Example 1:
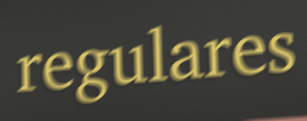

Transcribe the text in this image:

regulares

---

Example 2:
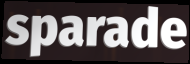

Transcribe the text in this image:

sparade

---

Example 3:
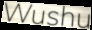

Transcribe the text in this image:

Wushu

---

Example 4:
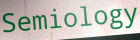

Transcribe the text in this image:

Semiology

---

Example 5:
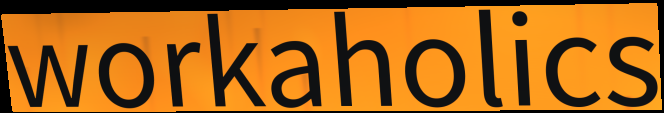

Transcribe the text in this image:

workaholics